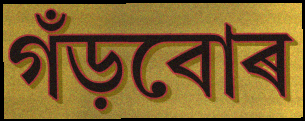
গঁড়বোৰ